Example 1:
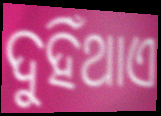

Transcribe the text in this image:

ଦୁହିଁଥାଏ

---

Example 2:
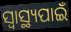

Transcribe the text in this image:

ସ୍ବାସ୍ଥ୍ୟପାଇଁ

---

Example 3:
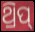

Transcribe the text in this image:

ଥ୍ରିପ୍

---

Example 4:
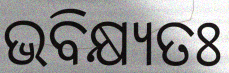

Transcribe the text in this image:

ଭବିକ୍ଷ୍ୟତଃ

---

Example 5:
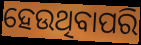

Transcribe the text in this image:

ହେଉଥିବାପରି